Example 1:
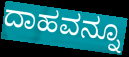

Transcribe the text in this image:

ದಾಹವನ್ನೂ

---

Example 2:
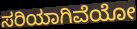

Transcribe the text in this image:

ಸರಿಯಾಗಿವೆಯೋ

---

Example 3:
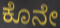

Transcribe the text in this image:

ಕೊನೇ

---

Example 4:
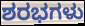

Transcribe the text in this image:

ಶರಭಗಳು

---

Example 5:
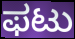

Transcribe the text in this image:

ಫಟು